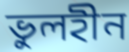
ভুলহীন